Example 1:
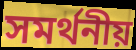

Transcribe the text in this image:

সমর্থনীয়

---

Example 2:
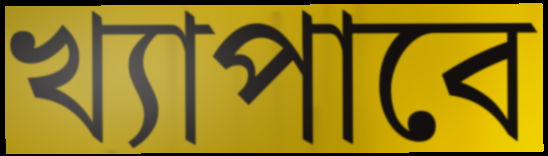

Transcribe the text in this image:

খ্যাপাবে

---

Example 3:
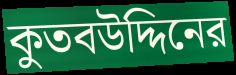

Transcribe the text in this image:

কুতবউদ্দিনের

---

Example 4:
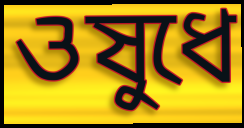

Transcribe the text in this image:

ওষুধে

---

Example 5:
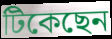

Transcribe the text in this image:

টিকেছেন